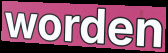
worden